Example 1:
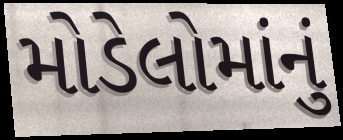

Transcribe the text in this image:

મોડેલોમાંનું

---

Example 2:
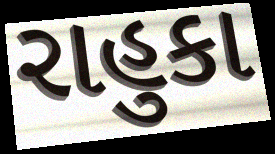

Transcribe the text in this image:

રાહુકા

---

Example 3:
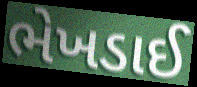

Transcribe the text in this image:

ભેખડાઈ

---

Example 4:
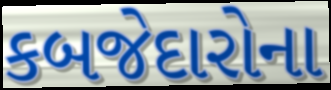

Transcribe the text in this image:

કબજેદારોના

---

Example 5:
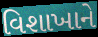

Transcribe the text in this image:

વિશાખાને